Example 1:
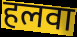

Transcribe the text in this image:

हलवा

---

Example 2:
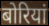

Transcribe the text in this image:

बोरियां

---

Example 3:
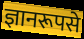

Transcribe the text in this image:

ज्ञानरूपसे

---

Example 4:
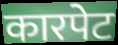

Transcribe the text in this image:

कारपेट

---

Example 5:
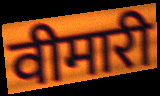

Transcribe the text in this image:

वीमारी